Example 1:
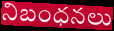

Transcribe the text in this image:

నిబంధనలు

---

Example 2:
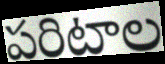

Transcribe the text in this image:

పరిటాల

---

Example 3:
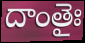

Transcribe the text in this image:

దాంతైః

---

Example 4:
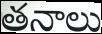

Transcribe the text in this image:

తనాలు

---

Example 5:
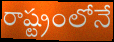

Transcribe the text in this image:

రాష్ట్రంలోనే